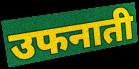
उफनाती